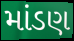
માંડણ